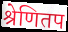
श्रेणितप